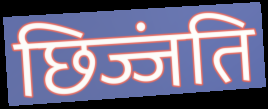
छिज्जंति